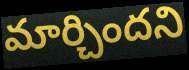
మార్చిందని